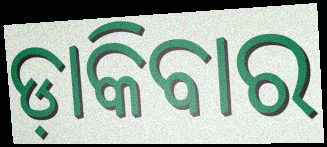
ଡ଼ାକିବାର